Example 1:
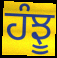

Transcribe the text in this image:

ਹੰਝੂ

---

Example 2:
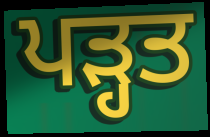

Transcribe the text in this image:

ਪਡ਼੍ਹਤ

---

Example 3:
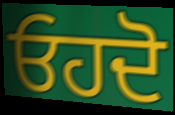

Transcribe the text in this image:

ਓਹਦੋ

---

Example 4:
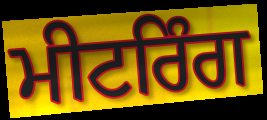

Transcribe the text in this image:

ਮੀਟਰਿੰਗ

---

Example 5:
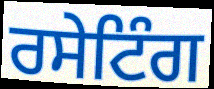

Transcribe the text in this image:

ਰਸੇਟਿੰਗ